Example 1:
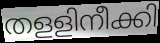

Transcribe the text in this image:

തളളിനീക്കി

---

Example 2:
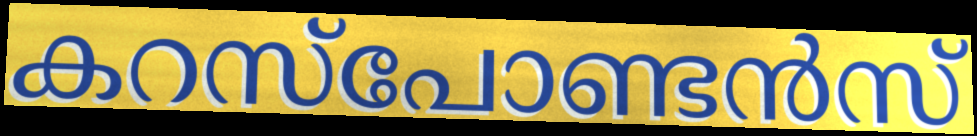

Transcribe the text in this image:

കറസ്പോണ്ടൻസ്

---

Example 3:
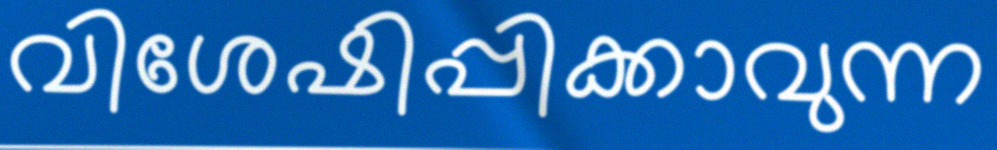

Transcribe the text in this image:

വിശേഷിപ്പിക്കാവുന്ന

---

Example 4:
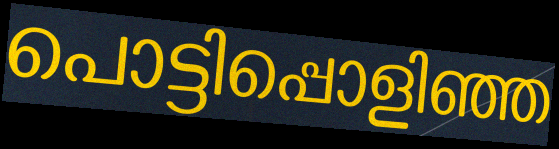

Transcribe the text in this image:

പൊട്ടിപ്പൊളിഞ്ഞ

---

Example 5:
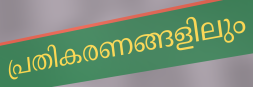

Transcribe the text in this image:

പ്രതികരണങ്ങളിലും